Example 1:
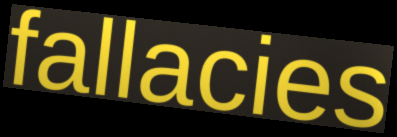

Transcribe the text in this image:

fallacies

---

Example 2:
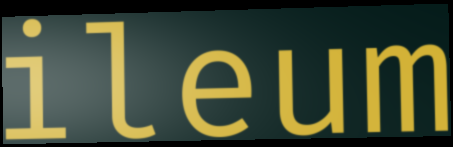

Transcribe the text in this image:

ileum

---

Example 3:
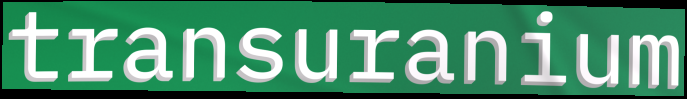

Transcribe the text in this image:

transuranium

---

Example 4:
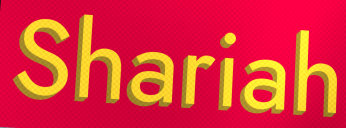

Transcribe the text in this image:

Shariah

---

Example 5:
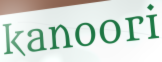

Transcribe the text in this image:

kanoori